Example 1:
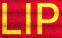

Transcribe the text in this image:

LIP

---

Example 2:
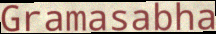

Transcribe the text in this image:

Gramasabha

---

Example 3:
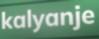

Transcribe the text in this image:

kalyanje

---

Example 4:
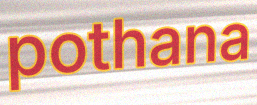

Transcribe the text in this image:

pothana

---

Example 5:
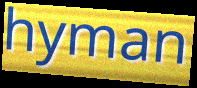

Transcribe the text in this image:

hyman